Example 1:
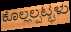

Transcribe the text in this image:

ಕೊಲ್ಲಲ್ಪಟ್ಟಳು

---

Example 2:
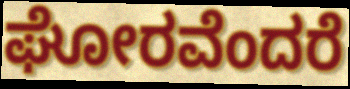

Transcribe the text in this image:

ಘೋರವೆಂದರೆ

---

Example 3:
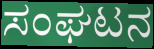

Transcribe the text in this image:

ಸಂಘಟನ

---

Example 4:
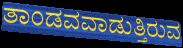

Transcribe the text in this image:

ತಾಂಡವವಾಡುತ್ತಿರುವ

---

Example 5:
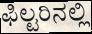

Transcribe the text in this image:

ಫಿಲ್ಟರಿನಲ್ಲಿ